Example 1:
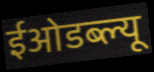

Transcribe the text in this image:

ईओडब्ल्यू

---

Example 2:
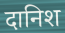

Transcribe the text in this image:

दानिश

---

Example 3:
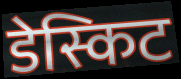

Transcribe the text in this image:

डेस्किट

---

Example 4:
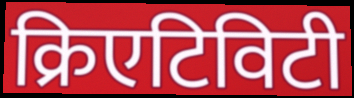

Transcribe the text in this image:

क्रिएटिविटी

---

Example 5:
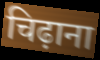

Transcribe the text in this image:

चिढ़ाना